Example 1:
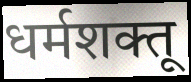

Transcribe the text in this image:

धर्मशक्तू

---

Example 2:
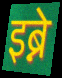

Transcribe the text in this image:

इब्ने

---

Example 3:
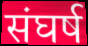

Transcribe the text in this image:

संघर्ष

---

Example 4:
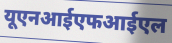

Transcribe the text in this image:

यूएनआईएफआईएल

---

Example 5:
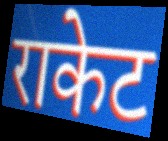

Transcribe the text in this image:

राकेट